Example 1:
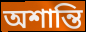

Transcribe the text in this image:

অশান্তি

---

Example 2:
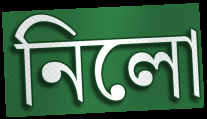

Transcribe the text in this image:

নিলো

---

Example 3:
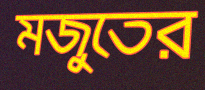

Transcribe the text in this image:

মজুতের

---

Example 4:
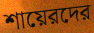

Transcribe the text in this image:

শায়েরদের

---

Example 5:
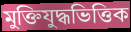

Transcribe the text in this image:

মুক্তিযুদ্ধভিত্তিক